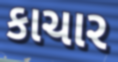
કાચાર